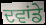
ਦਵਾਂਡੇ